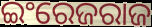
ଇଂରେଜରାଜ